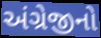
અંગ્રેજીનો